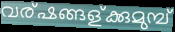
വര്ഷങ്ങള്ക്കുമുമ്പ്